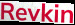
Revkin